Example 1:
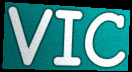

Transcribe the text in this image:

VIC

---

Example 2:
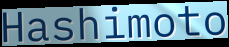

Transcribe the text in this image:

Hashimoto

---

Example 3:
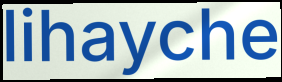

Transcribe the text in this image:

lihayche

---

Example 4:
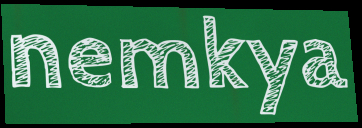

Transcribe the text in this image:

nemkya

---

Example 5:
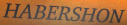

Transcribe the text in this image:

HABERSHON